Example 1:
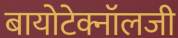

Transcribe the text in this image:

बायोटेक्नॉलजी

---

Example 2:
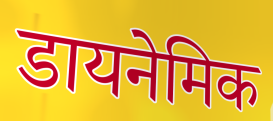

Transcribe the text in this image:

डायनेमिक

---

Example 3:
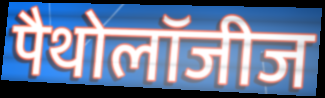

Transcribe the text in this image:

पैथोलॉजीज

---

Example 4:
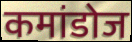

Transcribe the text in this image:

कमांडोज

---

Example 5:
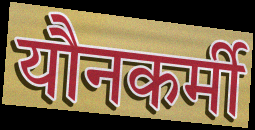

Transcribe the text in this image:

यौनकर्मी